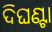
ଦିଘଣ୍ଟା